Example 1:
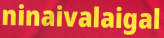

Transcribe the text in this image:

ninaivalaigal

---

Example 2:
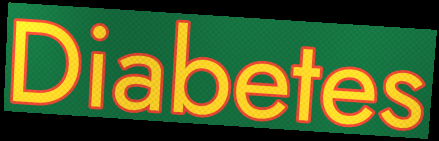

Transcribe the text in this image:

Diabetes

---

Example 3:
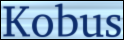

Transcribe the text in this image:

Kobus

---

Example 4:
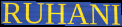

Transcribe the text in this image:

RUHANI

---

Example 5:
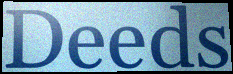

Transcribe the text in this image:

Deeds